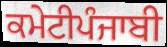
ਕਮੇਟੀਪੰਜਾਬੀ